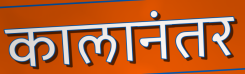
कालानंतर